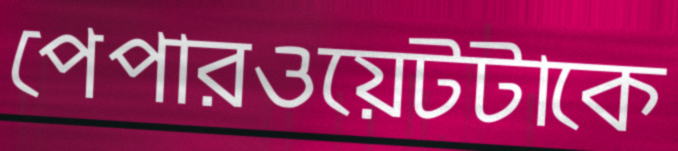
পেপারওয়েটটাকে